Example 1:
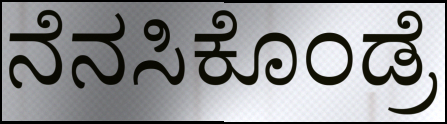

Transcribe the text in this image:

ನೆನಸಿಕೊಂಡ್ರೆ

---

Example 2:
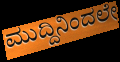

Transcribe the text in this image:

ಮುದ್ದಿನಿಂದಲೇ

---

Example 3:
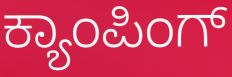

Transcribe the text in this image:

ಕ್ಯಾಂಪಿಂಗ್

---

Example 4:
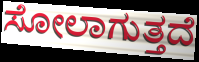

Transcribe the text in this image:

ಸೋಲಾಗುತ್ತದೆ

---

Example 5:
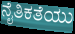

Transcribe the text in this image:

ನೈತಿಕತೆಯು